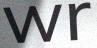
wr